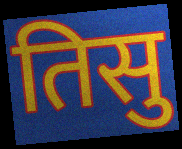
तिसु